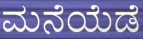
ಮನೆಯೆಡೆ